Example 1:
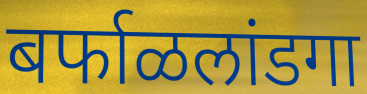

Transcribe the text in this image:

बर्फाळलांडगा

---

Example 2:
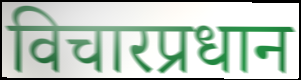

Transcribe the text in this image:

विचारप्रधान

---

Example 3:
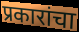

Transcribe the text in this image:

प्रकारांचा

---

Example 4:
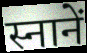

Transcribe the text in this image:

स्नानें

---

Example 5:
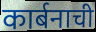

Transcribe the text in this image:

कार्बनाची